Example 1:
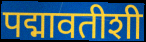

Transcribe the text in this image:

पद्मावतीशी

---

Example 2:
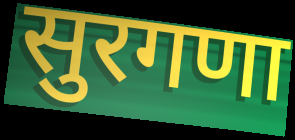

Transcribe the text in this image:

सुरगणा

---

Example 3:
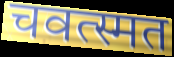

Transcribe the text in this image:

चवत्स्मत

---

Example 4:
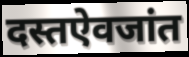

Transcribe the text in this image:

दस्तऐवजांत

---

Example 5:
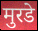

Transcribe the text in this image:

मुरडे